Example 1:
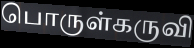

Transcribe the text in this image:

பொருள்கருவி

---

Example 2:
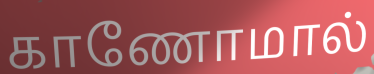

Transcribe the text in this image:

காணோமால்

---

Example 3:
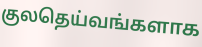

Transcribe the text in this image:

குலதெய்வங்களாக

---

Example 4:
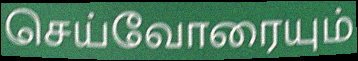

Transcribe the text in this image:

செய்வோரையும்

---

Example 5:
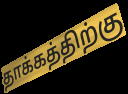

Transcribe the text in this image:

தாக்கத்திற்கு